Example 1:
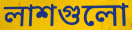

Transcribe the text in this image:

লাশগুলো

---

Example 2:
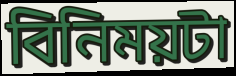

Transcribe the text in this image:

বিনিময়টা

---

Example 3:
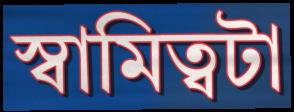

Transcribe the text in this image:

স্বামিত্বটা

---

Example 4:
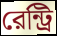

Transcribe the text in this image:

রেন্ট্রি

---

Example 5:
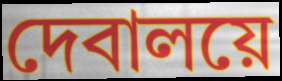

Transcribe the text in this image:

দেবালয়ে